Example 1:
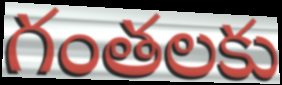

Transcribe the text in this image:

గంతలకు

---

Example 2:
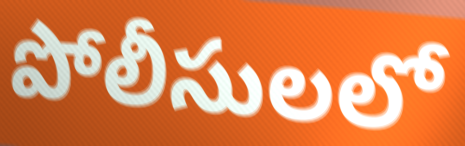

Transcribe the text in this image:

పోలీసులలో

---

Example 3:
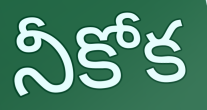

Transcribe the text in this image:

నీకోక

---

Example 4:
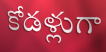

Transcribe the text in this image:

కోడళ్లుగా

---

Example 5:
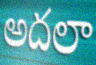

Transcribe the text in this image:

అదలా